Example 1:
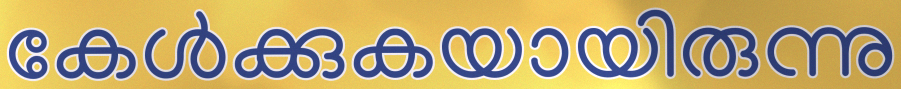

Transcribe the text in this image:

കേൾക്കുകയായിരുന്നു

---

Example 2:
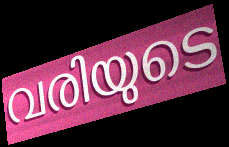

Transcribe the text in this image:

വരിയുടെ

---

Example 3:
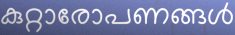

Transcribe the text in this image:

കുറ്റാരോപണങ്ങൾ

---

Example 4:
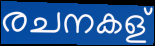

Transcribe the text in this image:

രചനകള്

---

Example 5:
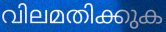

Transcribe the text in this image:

വിലമതിക്കുക